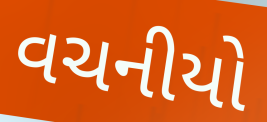
વચનીયો